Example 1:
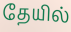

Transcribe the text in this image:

தேயில்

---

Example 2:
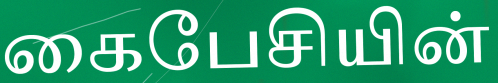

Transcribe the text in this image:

கைபேசியின்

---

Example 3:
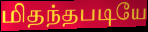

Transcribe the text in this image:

மிதந்தபடியே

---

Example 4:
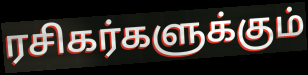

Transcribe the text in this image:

ரசிகர்களுக்கும்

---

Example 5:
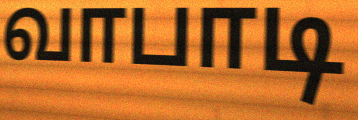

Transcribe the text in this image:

வாபாடி